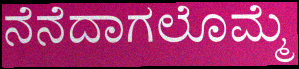
ನೆನೆದಾಗಲೊಮ್ಮೆ